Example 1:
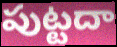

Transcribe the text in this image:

పుట్టదా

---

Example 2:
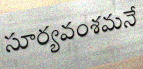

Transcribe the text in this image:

సూర్యవంశమనే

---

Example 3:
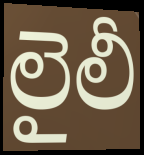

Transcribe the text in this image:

లైలీ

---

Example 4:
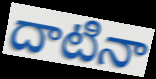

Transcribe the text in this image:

దాటినా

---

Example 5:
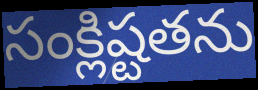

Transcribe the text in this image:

సంక్లిష్టతను